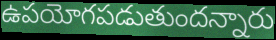
ఉపయోగపడుతుందన్నారు